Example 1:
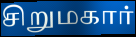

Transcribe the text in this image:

சிறுமகார்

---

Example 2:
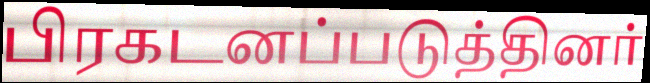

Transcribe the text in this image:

பிரகடனப்படுத்தினர்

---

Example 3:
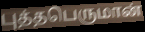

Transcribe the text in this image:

புத்தபெருமான்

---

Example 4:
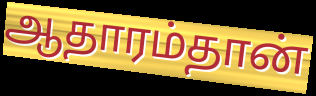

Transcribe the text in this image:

ஆதாரம்தான்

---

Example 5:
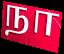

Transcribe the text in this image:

நா